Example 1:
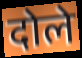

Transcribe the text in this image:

दोले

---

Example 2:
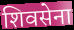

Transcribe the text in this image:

शिवसेना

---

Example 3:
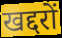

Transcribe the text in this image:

खद्दरों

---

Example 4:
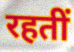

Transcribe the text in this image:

रहतीं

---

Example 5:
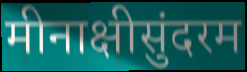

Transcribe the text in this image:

मीनाक्षीसुंदरम